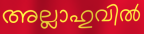
അല്ലാഹുവിൽ